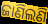
ଜାଣିଲଣି